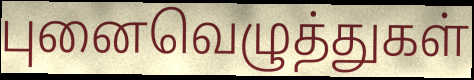
புனைவெழுத்துகள்